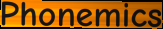
Phonemics